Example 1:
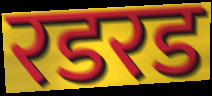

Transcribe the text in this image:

रडरड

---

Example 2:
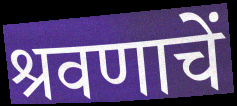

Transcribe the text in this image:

श्रवणाचें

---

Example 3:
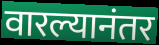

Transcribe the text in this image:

वारल्यानंतर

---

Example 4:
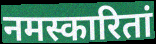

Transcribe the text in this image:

नमस्कारितां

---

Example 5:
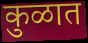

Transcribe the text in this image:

कुळात